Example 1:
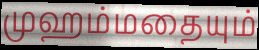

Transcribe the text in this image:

முஹம்மதையும்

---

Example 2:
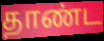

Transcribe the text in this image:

தாண்ட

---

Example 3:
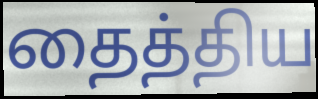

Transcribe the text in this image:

தைத்திய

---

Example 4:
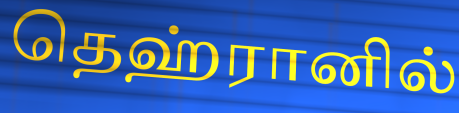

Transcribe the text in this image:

தெஹ்ரானில்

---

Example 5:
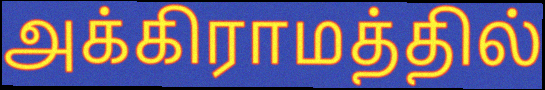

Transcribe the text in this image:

அக்கிராமத்தில்